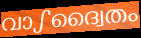
വാഽദ്വൈതം